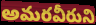
అమరవీరుని